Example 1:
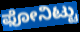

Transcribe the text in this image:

ಫೋನಿಟ್ಟು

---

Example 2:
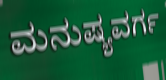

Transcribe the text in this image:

ಮನುಷ್ಯವರ್ಗ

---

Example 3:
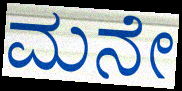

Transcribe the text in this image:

ಮನೇ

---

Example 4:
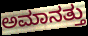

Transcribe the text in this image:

ಅಮಾನತ್ತು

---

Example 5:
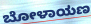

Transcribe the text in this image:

ಬೋಳಾಯಣ